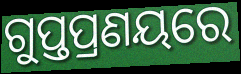
ଗୁପ୍ତପ୍ରଣୟରେ